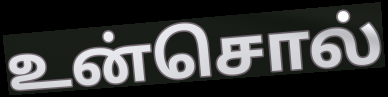
உன்சொல்